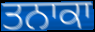
ਤਨਾਕਾ